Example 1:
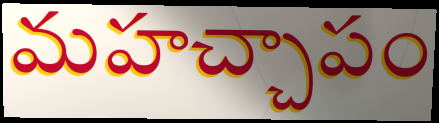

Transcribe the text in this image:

మహచ్చాపం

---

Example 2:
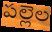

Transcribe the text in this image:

పల్లెల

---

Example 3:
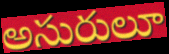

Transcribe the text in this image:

అసురులూ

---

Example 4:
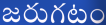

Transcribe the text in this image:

జరుగటం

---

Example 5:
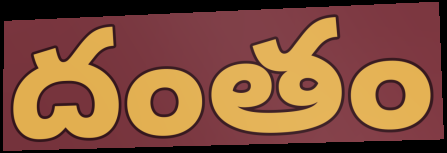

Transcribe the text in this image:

దంతం